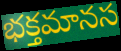
భక్తమానస